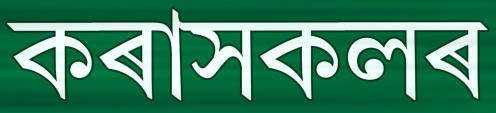
কৰাসকলৰ